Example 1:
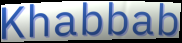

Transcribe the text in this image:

Khabbab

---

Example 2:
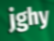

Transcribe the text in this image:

jghy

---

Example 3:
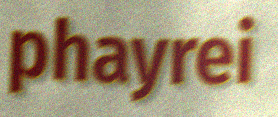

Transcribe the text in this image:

phayrei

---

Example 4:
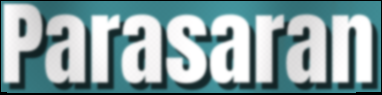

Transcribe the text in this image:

Parasaran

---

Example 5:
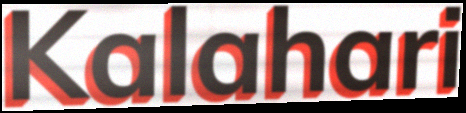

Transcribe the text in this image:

Kalahari